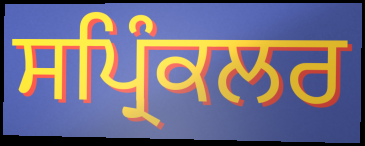
ਸਪ੍ਰਿੰਕਲਰ